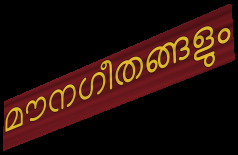
മൗനഗീതങ്ങളും